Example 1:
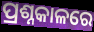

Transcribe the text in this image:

ପ୍ରଶ୍ନକାଳରେ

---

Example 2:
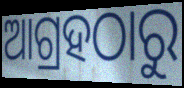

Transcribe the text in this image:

ଆଗ୍ରହଠାରୁ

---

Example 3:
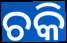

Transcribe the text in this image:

ଚକି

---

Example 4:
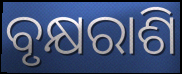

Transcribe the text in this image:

ବୃକ୍ଷରାଶି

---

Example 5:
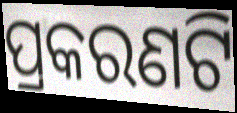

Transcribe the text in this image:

ପ୍ରକରଣଟି